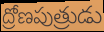
ద్రోణపుత్రుడు